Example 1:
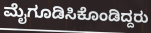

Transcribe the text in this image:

ಮೈಗೂಡಿಸಿಕೊಂಡಿದ್ದರು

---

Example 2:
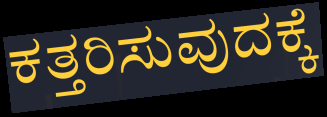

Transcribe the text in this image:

ಕತ್ತರಿಸುವುದಕ್ಕೆ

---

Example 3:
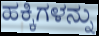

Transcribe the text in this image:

ಹಕ್ಕಿಗಳನ್ನು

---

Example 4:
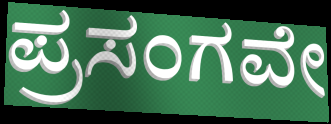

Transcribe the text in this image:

ಪ್ರಸಂಗವೇ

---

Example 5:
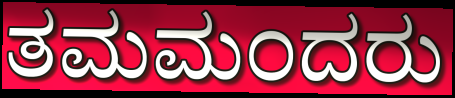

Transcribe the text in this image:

ತಮಮಂದರು